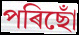
পৰিছোঁ